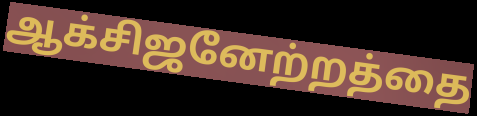
ஆக்சிஜனேற்றத்தை